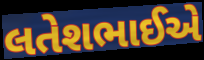
લતેશભાઈએ